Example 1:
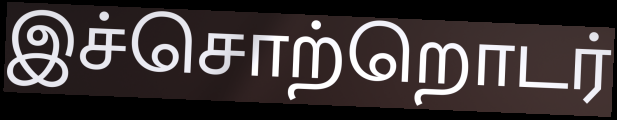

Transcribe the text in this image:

இச்சொற்றொடர்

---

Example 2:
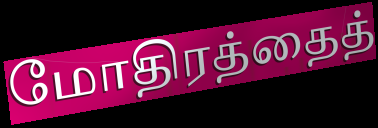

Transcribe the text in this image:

மோதிரத்தைத்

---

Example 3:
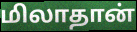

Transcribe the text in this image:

மிலாதான்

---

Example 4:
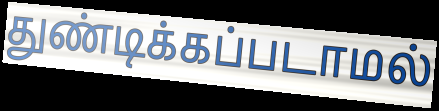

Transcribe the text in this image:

துண்டிக்கப்படாமல்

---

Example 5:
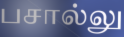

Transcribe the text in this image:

பசால்லு